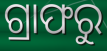
ଗ୍ରାଫରୁ